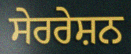
ਸੇਰਰੇਸ਼ਨ